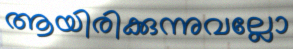
ആയിരിക്കുന്നുവല്ലോ